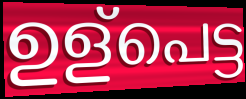
ഉള്പെട്ട